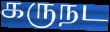
கருநட